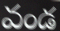
వండ